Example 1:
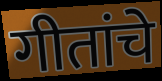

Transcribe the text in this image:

गीतांचे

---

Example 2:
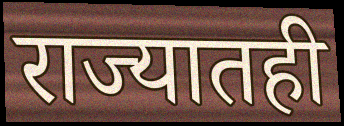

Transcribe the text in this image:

राज्यातही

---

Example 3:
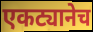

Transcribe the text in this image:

एकट्यानेच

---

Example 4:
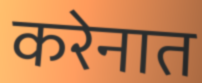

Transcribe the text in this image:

करेनात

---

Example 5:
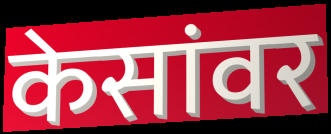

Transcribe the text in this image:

केसांवर